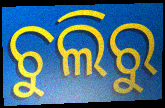
ଚୁଲିରୁ